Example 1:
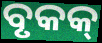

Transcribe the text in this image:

ବୃକକ୍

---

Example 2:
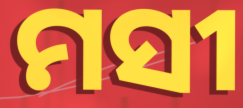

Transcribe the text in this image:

ମସୀ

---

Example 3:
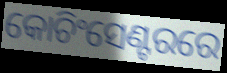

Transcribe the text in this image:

କୋଚିଂସେଣ୍ଟରରେ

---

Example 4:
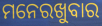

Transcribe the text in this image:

ମନେରଖୁବାର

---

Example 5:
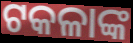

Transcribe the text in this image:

ଟକଳାଙ୍କ